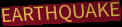
EARTHQUAKE